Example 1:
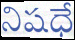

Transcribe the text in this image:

నిషధే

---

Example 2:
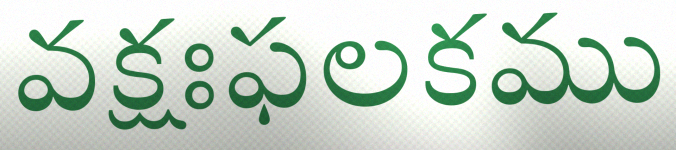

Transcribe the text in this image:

వక్షఃఫలకము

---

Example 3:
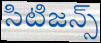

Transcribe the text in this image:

సిటిజన్స్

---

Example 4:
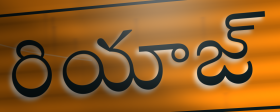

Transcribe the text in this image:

రియాజ్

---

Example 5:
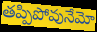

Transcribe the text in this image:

తప్పిపోవునేమో